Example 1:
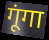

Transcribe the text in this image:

गूंगा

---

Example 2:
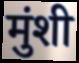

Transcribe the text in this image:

मुंशी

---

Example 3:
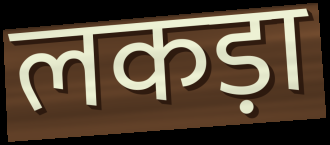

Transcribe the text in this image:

लकड़ा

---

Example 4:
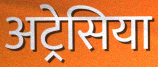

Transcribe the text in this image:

अट्रेसिया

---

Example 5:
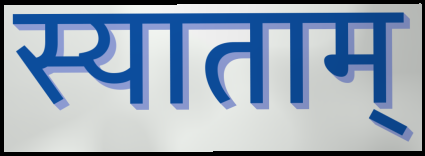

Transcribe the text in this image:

स्याताम्